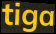
tiga